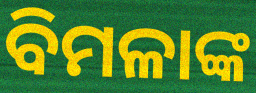
ବିମଳାଙ୍କ